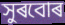
সুৰবোৰ